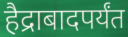
हैद्राबादपर्यंत